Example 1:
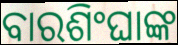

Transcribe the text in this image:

ବାରଶିଂଘାଙ୍କ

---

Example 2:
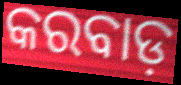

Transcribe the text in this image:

କରବାଡ଼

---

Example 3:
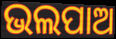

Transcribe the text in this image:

ଭଲପାଅ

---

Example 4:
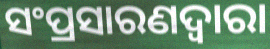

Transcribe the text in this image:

ସଂପ୍ରସାରଣଦ୍ଵାରା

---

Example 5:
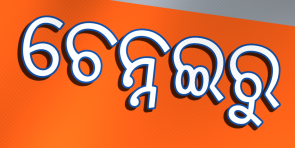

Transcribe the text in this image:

ଚେନ୍ନଇରୁ